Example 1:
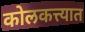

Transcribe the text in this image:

कोलकत्त्यात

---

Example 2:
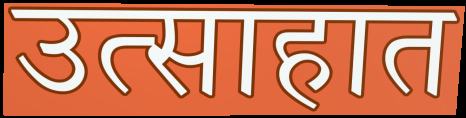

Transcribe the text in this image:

उत्साहात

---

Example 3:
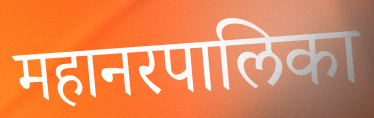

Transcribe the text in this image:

महानरपालिका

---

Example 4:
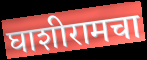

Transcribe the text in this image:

घाशीरामचा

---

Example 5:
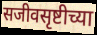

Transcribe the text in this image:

सजीवसृष्टीच्या